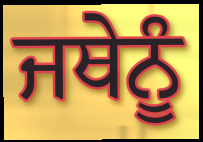
ਜਥੇਨੂੰ